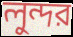
লুন্দর